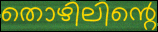
തൊഴിലിന്റെ